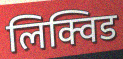
लिक्विड